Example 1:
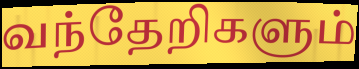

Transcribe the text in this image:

வந்தேறிகளும்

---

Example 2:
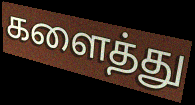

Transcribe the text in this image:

களைத்து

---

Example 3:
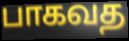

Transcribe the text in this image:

பாகவத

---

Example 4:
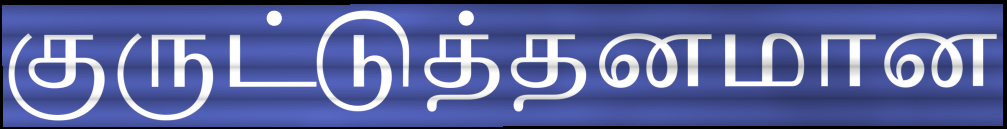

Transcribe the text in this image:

குருட்டுத்தனமான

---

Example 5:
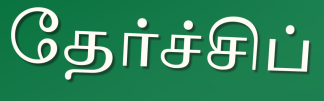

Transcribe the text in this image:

தேர்ச்சிப்